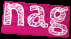
nag